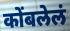
कोंबलेलं